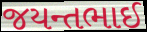
જયન્તભાઈ